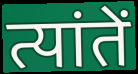
त्यांतें